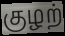
குழற்